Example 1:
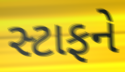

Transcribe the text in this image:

સ્ટાફને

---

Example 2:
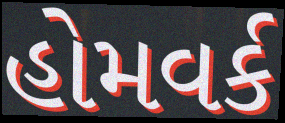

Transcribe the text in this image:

હોમવર્ક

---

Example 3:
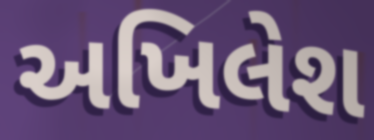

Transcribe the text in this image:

અખિલેશ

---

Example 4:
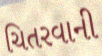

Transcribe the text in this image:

ચિતરવાની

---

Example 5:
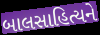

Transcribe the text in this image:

બાલસાહિત્યને